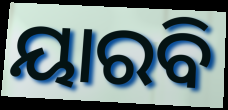
ୟାରବି